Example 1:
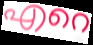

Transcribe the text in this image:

എറെ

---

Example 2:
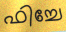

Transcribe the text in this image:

ഫിച്ചേ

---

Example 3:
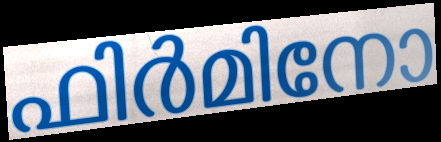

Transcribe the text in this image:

ഫിർമിനോ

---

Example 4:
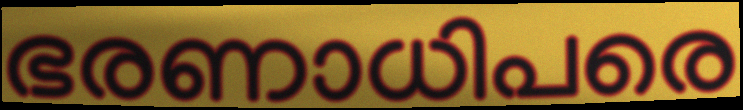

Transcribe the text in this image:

ഭരണാധിപരെ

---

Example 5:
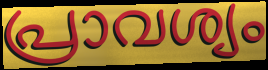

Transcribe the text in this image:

പ്രാവശ്യം